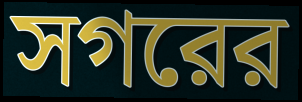
সগরের